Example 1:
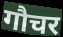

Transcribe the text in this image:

गौचर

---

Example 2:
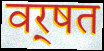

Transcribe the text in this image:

वर्षत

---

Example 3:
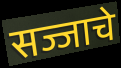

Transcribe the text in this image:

सज्जाचे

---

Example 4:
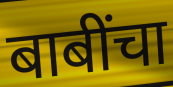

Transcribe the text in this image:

बाबींचा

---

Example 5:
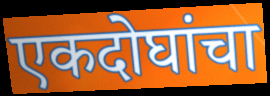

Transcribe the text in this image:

एकदोघांचा